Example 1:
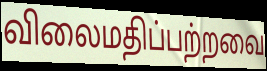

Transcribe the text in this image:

விலைமதிப்பற்றவை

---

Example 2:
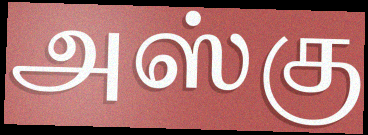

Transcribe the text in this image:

அஸ்கு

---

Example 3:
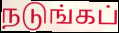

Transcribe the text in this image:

நடுங்கப்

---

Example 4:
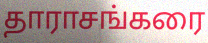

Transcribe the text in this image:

தாராசங்கரை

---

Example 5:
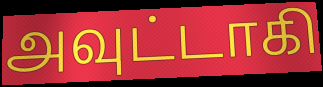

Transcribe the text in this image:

அவுட்டாகி